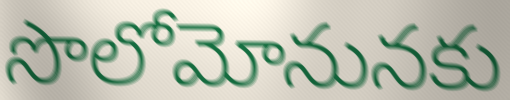
సొలోమోనునకు